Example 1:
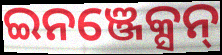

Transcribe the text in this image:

ଇନଞ୍ଜେକ୍ସନ୍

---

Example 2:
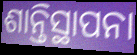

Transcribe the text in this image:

ଶାନ୍ତିସ୍ଥାପନା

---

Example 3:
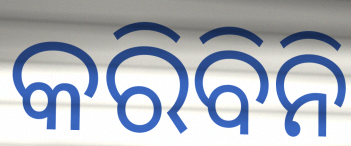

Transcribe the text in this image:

କରିବିନି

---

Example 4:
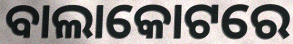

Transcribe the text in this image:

ବାଲାକୋଟରେ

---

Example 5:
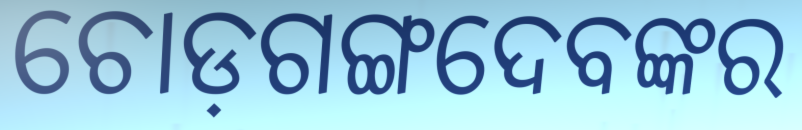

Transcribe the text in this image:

ଚୋଡ଼ଗଙ୍ଗଦେବଙ୍କର